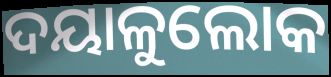
ଦୟାଳୁଲୋକ